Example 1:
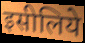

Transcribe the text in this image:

इसीलिये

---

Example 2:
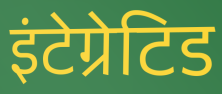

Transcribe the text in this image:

इंटेग्रेटिड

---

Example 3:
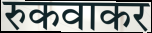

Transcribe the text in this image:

रुकवाकर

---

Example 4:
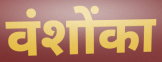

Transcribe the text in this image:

वंशोंका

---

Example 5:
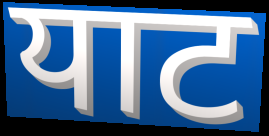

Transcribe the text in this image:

याट